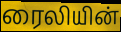
ரைலியின்